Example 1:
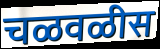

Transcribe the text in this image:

चळवळीस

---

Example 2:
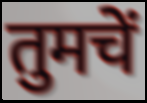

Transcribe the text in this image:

तुमचें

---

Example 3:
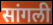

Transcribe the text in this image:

सांगली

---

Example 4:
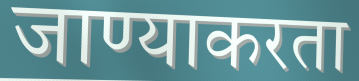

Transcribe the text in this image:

जाण्याकरता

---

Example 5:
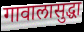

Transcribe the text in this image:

गावालासुद्धा